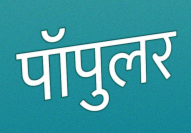
पॉपुलर